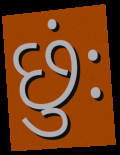
છુંઃ